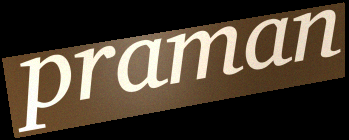
praman